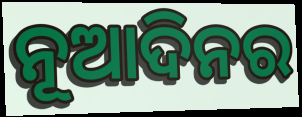
ନୂଆଦିନର